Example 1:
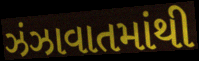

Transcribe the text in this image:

ઝંઝાવાતમાંથી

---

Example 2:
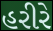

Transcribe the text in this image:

હરીરે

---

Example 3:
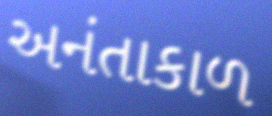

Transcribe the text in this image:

અનંતાકાળ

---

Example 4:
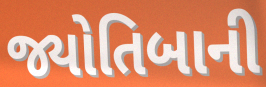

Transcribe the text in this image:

જ્યોતિબાની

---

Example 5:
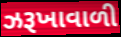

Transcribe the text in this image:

ઝરૂખાવાળી